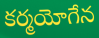
కర్మయోగేన